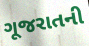
ગૂજરાતની